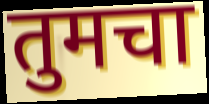
तुमचा